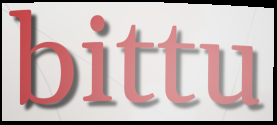
bittu